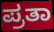
ಪ್ರತಾ